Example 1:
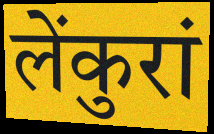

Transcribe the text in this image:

लेंकुरां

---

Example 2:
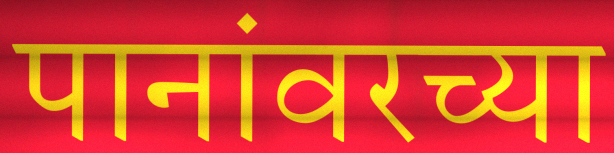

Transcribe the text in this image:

पानांवरच्या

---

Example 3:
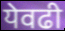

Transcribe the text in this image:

येवढी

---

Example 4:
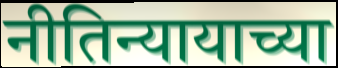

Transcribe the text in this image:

नीतिन्यायाच्या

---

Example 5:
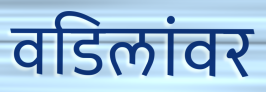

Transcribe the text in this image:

वडिलांवर